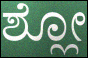
ಶ್ಲೋ